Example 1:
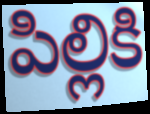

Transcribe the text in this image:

పిల్లికి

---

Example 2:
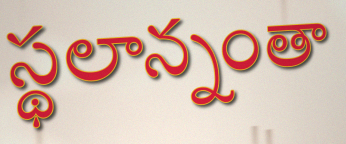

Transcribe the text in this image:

స్థలాన్నంతా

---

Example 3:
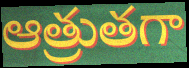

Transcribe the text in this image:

ఆత్రుతగా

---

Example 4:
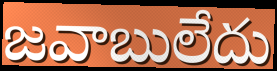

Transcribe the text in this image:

జవాబులేదు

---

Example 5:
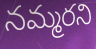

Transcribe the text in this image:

నమ్మరని